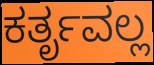
ಕರ್ತೃವಲ್ಲ